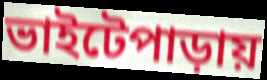
ভাইটেপাড়ায়